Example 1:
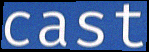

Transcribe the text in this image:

cast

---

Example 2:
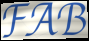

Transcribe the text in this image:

FAB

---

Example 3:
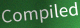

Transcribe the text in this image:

Compiled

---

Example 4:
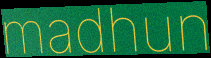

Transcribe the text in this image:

madhun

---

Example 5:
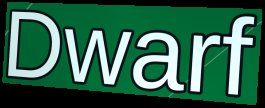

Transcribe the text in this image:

Dwarf